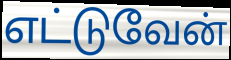
எட்டுவேன்